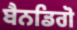
ਬੈਨਡਿਗੋ